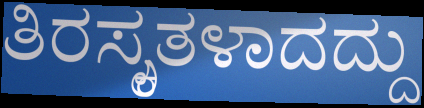
ತಿರಸ್ಕೃತಳಾದದ್ದು